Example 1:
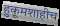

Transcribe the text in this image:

हुकूमशाहीच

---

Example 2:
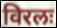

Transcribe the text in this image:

विरलः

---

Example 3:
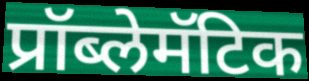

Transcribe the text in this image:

प्रॉब्लेमॅटिक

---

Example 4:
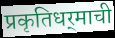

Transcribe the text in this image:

प्रकृतिधर्माची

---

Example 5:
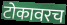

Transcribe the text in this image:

टोकावरच